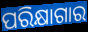
ପରିକ୍ଷାଗାର